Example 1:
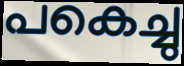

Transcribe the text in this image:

പകെച്ചു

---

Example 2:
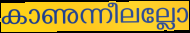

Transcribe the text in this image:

കാണുന്നീലല്ലോ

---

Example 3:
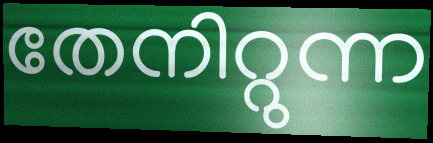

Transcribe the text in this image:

തേനിറ്റുന്ന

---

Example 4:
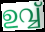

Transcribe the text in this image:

ഉവ്വ്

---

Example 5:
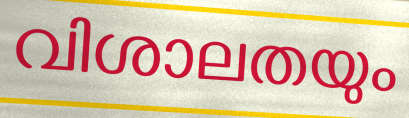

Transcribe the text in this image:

വിശാലതയും